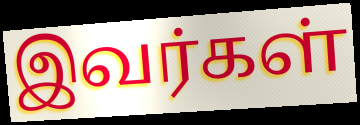
இவர்கள்